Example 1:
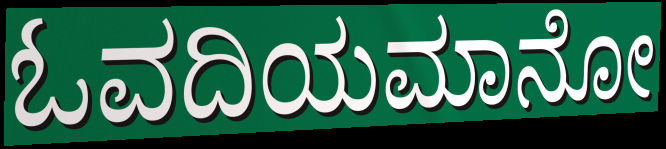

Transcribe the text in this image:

ಓವದಿಯಮಾನೋ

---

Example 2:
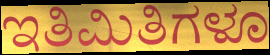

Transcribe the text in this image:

ಇತಿಮಿತಿಗಳೂ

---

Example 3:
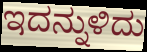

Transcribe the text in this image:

ಇದನ್ನುಳಿದು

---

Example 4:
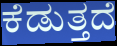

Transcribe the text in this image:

ಕೆಡುತ್ತದೆ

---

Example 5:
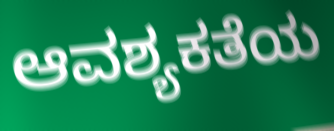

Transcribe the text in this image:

ಆವಶ್ಯಕತೆಯ